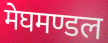
मेघमण्डल